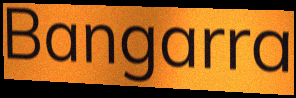
Bangarra